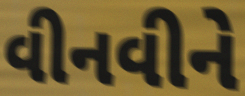
વીનવીને